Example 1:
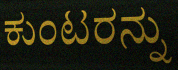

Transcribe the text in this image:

ಕುಂಟರನ್ನು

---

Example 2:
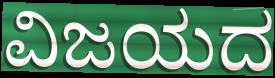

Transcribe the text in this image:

ವಿಜಯದ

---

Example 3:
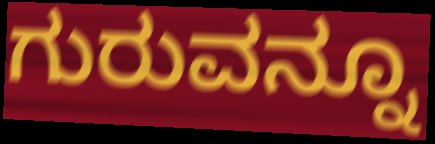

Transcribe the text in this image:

ಗುರುವನ್ನೂ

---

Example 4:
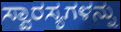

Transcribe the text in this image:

ಸ್ವಾರಸ್ಯಗಳನ್ನು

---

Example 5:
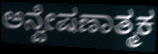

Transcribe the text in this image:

ಅನ್ವೇಷಣಾತ್ಮಕ